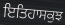
ਇਤਿਹਾਸਕੁਝ